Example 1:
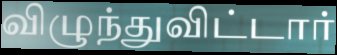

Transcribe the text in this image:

விழுந்துவிட்டார்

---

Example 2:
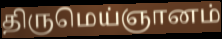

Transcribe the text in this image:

திருமெய்ஞானம்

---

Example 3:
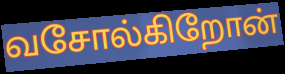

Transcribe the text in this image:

வசோல்கிறோன்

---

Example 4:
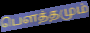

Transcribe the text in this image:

பௌத்தமும்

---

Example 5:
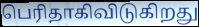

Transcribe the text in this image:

பெரிதாகிவிடுகிறது